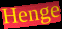
Henge